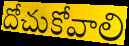
దోచుకోవాలి